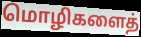
மொழிகளைத்